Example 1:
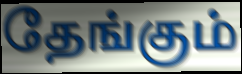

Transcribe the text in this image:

தேங்கும்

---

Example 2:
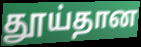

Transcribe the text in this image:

தூய்தான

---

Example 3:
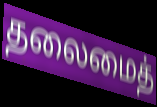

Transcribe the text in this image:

தலைமைத்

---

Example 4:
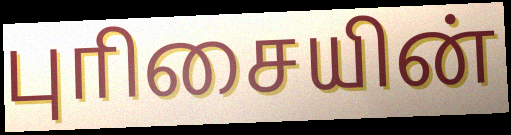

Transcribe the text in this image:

புரிசையின்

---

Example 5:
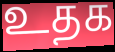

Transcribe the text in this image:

உதக